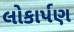
લોકાર્પણ